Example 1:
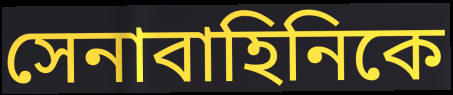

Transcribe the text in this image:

সেনাবাহিনিকে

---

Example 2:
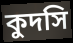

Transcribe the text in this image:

কুদসি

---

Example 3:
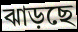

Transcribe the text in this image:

ঝাড়ছে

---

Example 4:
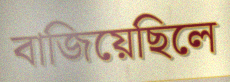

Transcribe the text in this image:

বাজিয়েছিলে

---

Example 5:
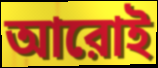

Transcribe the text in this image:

আরোই